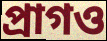
প্রাগও